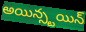
అయిన్స్టయిన్